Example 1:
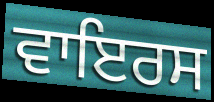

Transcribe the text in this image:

ਵਾਇਰਸ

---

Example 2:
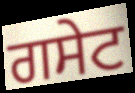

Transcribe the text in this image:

ਗਸੇਟ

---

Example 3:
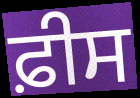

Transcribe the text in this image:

ਫ਼ੀਸ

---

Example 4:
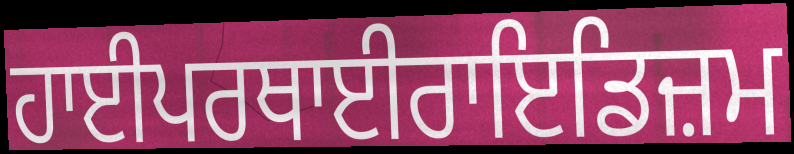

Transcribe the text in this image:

ਹਾਈਪਰਥਾਈਰਾਇਡਿਜ਼ਮ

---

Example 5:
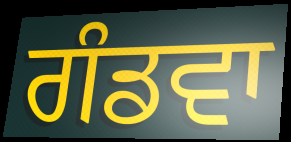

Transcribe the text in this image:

ਗੰਡਵਾ